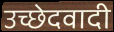
उच्छेदवादी